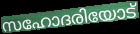
സഹോദരിയോട്